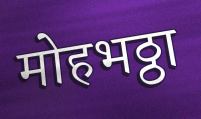
मोहभठ्ठा